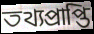
তথ্যপ্রাপ্তি